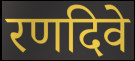
रणदिवे